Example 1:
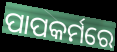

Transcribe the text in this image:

ପାପକର୍ମରେ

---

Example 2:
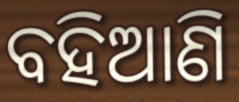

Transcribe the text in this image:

ବହିଆଣି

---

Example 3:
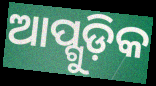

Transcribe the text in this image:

ଆପ୍ଗୁଡ଼ିକ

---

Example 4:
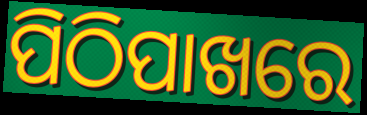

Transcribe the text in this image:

ପିଠିପାଖରେ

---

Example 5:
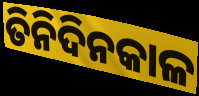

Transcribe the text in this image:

ତିନିଦିନକାଳ